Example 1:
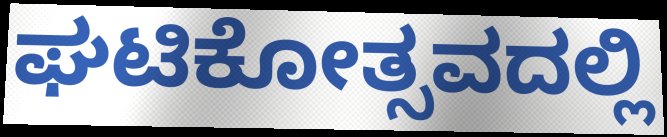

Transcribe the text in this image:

ಘಟಿಕೋತ್ಸವದಲ್ಲಿ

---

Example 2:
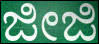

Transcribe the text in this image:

ಜೀಜಿ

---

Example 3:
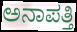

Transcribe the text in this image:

ಅನಾಪತ್ತಿ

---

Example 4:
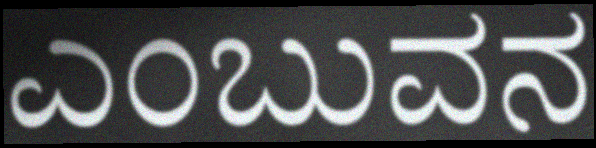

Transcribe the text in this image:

ಎಂಬುವನ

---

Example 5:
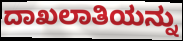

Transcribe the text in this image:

ದಾಖಲಾತಿಯನ್ನು